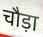
चौड़ा